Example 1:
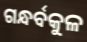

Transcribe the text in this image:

ଗନ୍ଧର୍ବକୁଳ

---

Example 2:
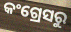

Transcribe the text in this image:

କଂଗ୍ରେସରୁ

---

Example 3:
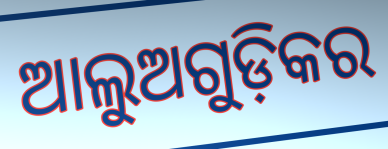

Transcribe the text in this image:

ଆଲୁଅଗୁଡ଼ିକର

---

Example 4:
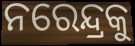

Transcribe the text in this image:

ନରେନ୍ଦ୍ରକୁ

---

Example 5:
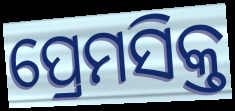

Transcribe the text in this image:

ପ୍ରେମସିକ୍ତ